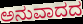
ಅನುವಾದದ